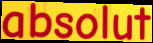
absolut